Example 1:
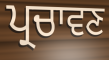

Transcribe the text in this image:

ਪ੍ਰਚਾਵਣ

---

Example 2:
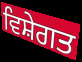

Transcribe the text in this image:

ਵਿਸ਼ੇਗਤ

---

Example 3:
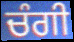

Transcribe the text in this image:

ਚੰਗੀ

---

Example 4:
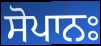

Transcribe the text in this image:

ਸੋਪਾਨਃ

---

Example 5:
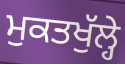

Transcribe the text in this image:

ਮੁਕਤਖੁੱਲ੍ਹੇ